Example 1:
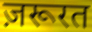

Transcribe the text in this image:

ज़रूरत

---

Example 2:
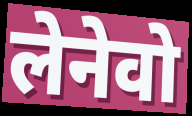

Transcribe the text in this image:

लेनेवो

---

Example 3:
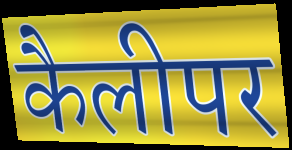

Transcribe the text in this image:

कैलीपर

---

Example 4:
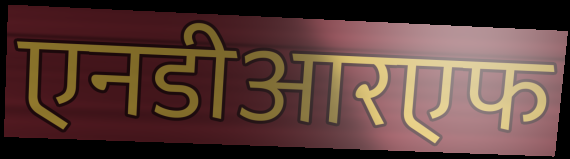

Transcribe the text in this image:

एनडीआरएफ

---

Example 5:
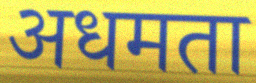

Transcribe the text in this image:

अधमता